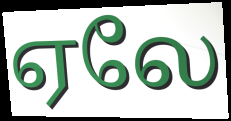
ஏலே